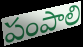
పంపాలి